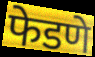
फेडणे